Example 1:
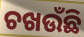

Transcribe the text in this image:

ଚଖଉଁଛି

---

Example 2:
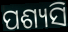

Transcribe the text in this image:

ପଶ୍ୟସି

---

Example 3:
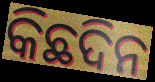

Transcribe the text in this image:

କିଛଦିନ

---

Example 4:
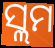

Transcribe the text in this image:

ସ୍ଲମ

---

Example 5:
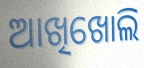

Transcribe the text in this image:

ଆଖିଖୋଲି